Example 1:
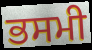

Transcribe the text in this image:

ਭਸਮੀ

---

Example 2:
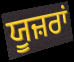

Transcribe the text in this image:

ਯੂਜ਼ਰਾਂ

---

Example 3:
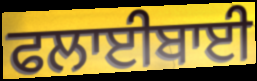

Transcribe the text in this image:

ਫਲਾਈਬਾਈ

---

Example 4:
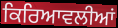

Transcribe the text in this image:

ਕਿਰਿਆਵਲੀਆਂ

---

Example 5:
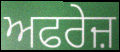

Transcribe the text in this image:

ਅਫਰੇਜ਼